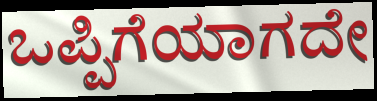
ಒಪ್ಪಿಗೆಯಾಗದೇ